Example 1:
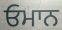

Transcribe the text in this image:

ਓਮਾਨ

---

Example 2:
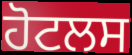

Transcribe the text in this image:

ਹੋਟਲਸ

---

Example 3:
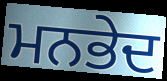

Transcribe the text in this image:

ਮਨਭੇਦ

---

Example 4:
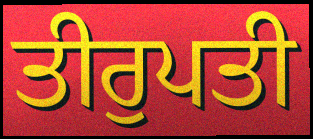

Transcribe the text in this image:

ਤੀਰੁਪਤੀ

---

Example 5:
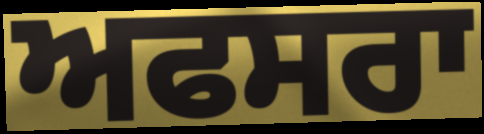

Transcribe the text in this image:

ਅਫਸਰਾ